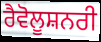
ਰੈਵੋਲੂਸ਼ਨਰੀ